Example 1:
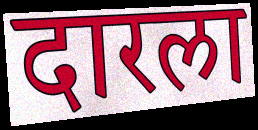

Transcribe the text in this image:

दारला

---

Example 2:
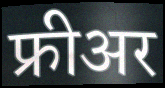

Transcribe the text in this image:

फ्रीअर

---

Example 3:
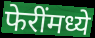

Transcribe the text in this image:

फेरींमध्ये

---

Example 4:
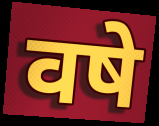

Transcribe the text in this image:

वषे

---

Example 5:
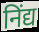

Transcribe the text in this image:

निंद्य